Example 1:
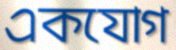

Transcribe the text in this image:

একযোগ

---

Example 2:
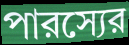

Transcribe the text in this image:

পারস্যের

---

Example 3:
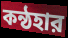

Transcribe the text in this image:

কন্ঠহার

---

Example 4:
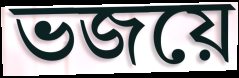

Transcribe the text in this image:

ভজয়ে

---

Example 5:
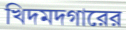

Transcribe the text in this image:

খিদমদগারের